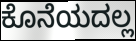
ಕೊನೆಯದಲ್ಲ